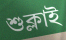
শুক্লাই